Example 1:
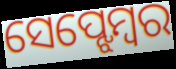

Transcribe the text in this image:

ସେପ୍ଝେମ୍ବର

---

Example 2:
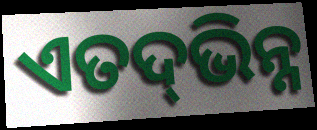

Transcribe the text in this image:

ଏତଦ୍‌ଭିନ୍ନ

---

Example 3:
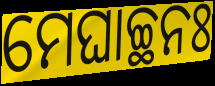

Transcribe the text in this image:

ମେଘାଚ୍ଛନଃ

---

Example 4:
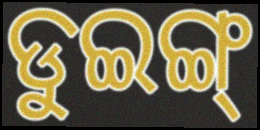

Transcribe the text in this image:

ଡୁଇଙ୍ଗ୍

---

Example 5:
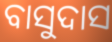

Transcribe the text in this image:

ବାସୁଦାସ